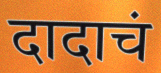
दादाचं